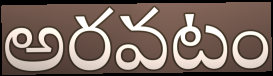
అరవటం